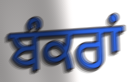
ਬੰਕਰਾਂ